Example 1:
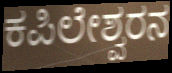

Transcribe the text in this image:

ಕಪಿಲೇಶ್ವರನ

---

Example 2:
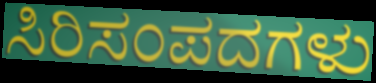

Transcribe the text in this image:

ಸಿರಿಸಂಪದಗಳು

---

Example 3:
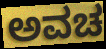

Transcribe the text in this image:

ಅವಚ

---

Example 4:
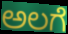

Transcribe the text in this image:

ಅಲಗೆ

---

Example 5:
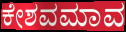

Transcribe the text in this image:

ಕೇಶವಮಾವ